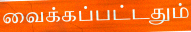
வைக்கப்பட்டதும்